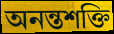
অনন্তশক্তি